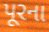
પૂરના